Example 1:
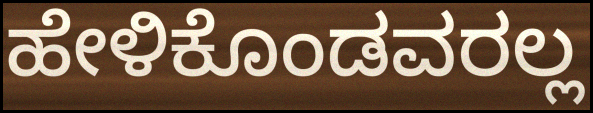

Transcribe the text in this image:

ಹೇಳಿಕೊಂಡವರಲ್ಲ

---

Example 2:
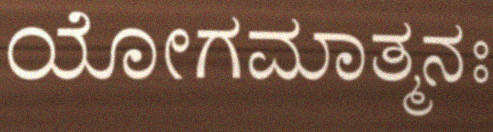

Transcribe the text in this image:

ಯೋಗಮಾತ್ಮನಃ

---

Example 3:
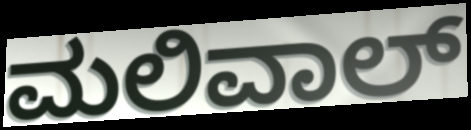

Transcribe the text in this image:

ಮಲಿವಾಲ್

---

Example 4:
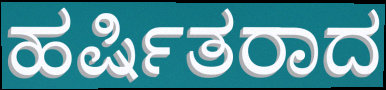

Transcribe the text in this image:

ಹರ್ಷಿತರಾದ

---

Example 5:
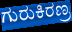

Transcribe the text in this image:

ಗುರುಕಿರಣ್ರ